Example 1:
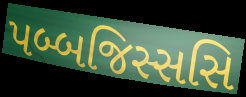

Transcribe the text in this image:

પબ્બજિસ્સસિ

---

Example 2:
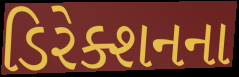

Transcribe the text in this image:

ડિરેક્શનના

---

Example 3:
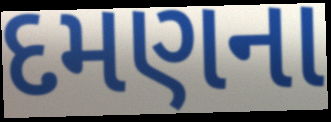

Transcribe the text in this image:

દમણના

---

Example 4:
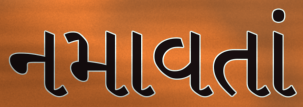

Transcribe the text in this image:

નમાવતાં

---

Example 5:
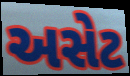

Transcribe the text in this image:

અસેટ